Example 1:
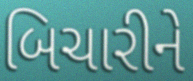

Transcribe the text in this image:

બિચારીને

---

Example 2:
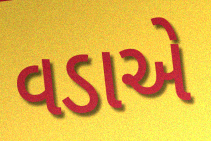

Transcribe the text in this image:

વડાએ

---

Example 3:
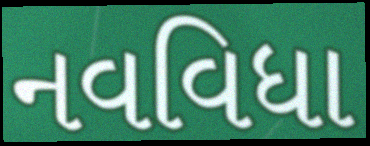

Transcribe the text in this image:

નવવિધા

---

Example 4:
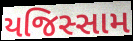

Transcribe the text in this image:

યજિસ્સામ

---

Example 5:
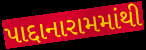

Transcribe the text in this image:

પાદ્દાનારામમાંથી